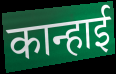
कान्हाई